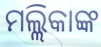
ମଲ୍ଲିକାଙ୍କ